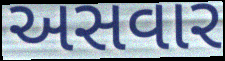
અસવાર